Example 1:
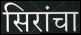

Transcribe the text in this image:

सिरांचा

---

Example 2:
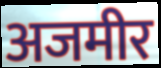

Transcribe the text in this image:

अजमीर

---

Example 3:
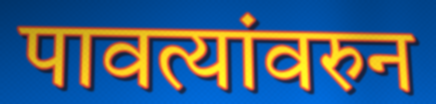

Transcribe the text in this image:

पावत्यांवरुन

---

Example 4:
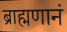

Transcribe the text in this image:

ब्राह्मणानं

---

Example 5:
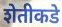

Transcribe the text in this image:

शेतीकडे